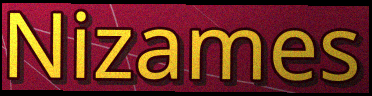
Nizames